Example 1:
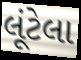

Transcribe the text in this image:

લૂંટેલા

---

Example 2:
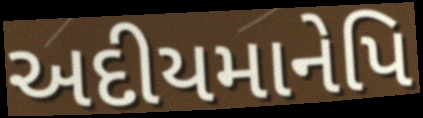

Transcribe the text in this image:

અદીયમાનેપિ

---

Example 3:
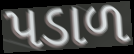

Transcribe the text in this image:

પડાળ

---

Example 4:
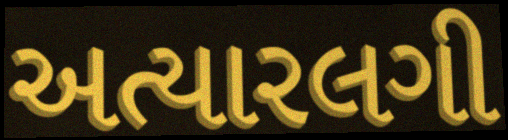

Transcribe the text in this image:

અત્યારલગી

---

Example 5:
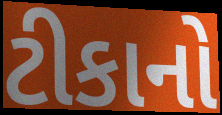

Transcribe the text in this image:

ટીકાનો